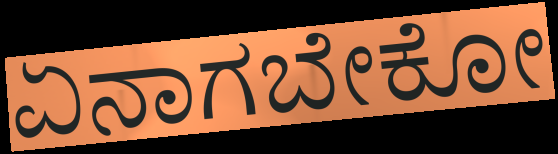
ಏನಾಗಬೇಕೋ